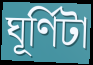
ঘূর্ণিটা